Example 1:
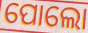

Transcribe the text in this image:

ପୋଲୋ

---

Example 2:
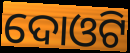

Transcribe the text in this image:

ଦୋଓଟି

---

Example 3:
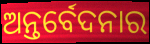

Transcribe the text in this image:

ଅନ୍ତର୍ବେଦନାର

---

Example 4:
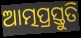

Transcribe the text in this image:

ଆତ୍ମପ୍ରସ୍ତୁତି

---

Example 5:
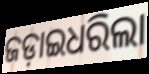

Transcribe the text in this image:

ଜଡ଼ାଇଧରିଲା